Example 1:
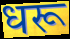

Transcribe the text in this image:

धरू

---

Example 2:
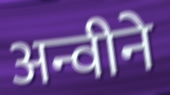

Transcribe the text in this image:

अन्वीने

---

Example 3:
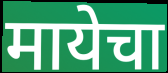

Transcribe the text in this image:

मायेचा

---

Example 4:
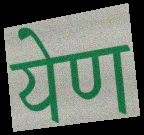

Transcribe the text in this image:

येण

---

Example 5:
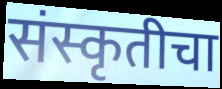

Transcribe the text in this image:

संस्कृतीचा